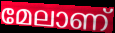
മേലാണ്